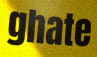
ghate